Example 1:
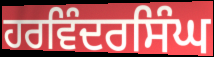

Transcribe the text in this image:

ਹਰਵਿੰਦਰਸਿੰਘ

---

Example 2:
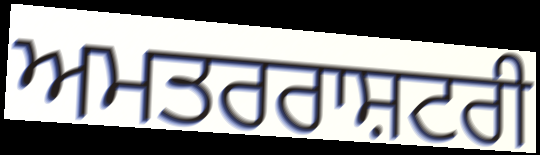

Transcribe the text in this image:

ਅਮਤਰਰਾਸ਼ਟਰੀ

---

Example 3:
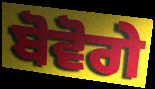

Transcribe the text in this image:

ਬੋਵੋਗੇ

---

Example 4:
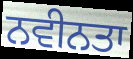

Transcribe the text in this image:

ਨਵੀਨਤਾ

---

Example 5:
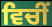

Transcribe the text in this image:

ਵਿਚੀਂ